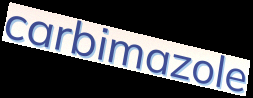
carbimazole